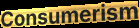
Consumerism